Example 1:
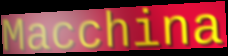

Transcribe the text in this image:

Macchina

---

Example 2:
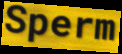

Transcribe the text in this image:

Sperm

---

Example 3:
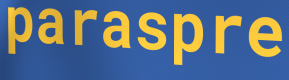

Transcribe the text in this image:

paraspre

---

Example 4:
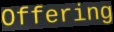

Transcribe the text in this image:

Offering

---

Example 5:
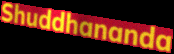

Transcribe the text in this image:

Shuddhananda